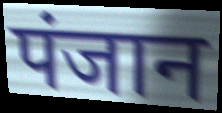
पंजान